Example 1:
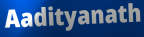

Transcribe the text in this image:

Aadityanath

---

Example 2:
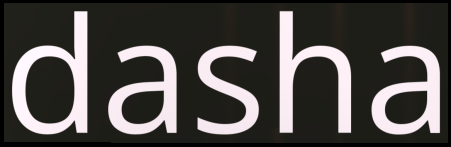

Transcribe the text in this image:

dasha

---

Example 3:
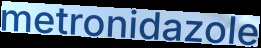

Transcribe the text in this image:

metronidazole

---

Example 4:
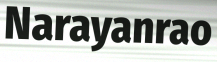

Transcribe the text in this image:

Narayanrao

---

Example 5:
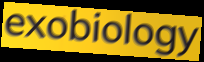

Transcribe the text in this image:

exobiology